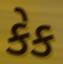
કેક